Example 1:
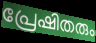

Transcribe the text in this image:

പ്രേഷിതരും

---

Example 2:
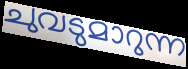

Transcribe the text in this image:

ചുവടുമാറുന്ന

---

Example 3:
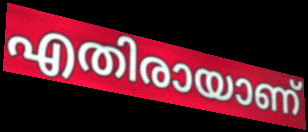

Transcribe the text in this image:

എതിരായാണ്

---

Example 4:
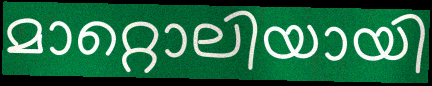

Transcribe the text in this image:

മാറ്റൊലിയായി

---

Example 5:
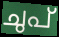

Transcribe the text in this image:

ചുപ്